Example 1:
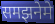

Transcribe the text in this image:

समझनेमे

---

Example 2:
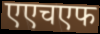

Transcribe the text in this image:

एएचएफ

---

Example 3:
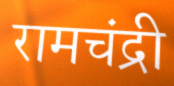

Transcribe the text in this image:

रामचंद्री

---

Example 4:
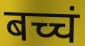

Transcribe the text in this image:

बच्चं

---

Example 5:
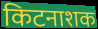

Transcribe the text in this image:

किटनाशक